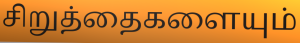
சிறுத்தைகளையும்